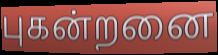
புகன்றனை